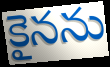
కైనను